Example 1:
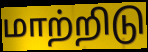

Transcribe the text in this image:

மாற்றிடு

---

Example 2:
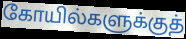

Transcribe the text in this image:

கோயில்களுக்குத்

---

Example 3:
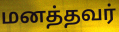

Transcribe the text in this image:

மனத்தவர்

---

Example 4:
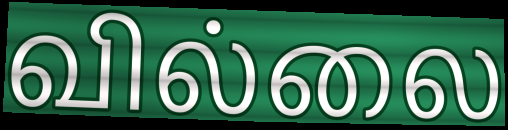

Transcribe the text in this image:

வில்லை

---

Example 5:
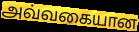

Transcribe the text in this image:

அவ்வகையான